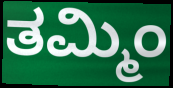
ತಮ್ಮಿಂ